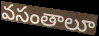
వసంతాలూ